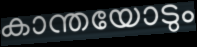
കാന്തയോടും